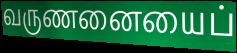
வருணனையைப்